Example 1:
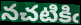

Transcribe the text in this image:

నచటికిఁ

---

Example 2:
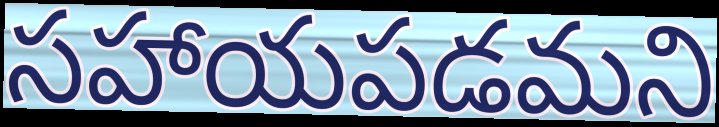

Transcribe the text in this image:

సహాయపడమని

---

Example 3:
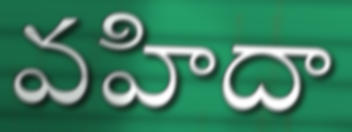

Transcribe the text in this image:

వహిదా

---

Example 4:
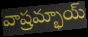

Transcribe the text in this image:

వాష్రమ్భాయ్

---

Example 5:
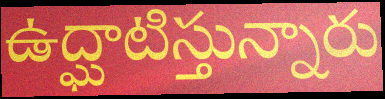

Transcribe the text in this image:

ఉద్ఘాటిస్తున్నారు